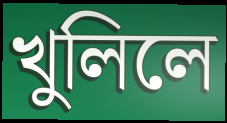
খুলিলে